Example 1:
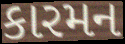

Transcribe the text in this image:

કારમન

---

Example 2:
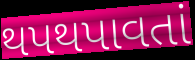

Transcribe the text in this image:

થપથપાવતાં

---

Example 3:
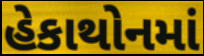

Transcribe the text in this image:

હેકાથોનમાં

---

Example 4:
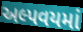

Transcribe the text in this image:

અલ્પવયમાં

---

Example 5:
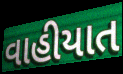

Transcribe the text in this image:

વાહીયાત